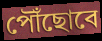
পৌঁছোবে